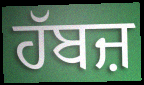
ਹੱਬਜ਼